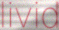
livid